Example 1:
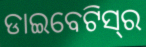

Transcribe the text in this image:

ଡାଇବେଟିସ୍‌ର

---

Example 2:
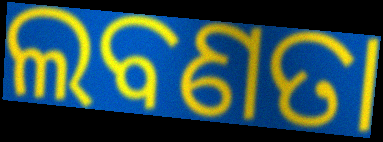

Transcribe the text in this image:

ଲବଣତା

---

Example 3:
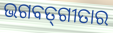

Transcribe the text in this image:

ଭଗବତ୍‍ଗୀତାର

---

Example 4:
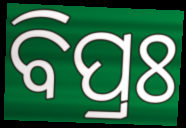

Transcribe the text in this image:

ବିପ୍ରଃ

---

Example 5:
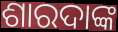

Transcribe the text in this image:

ଶାରଦାଙ୍କ